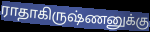
ராதாகிருஷ்ணனுக்கு